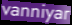
vanniyar